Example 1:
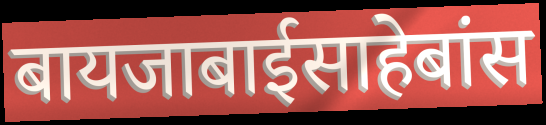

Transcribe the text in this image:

बायजाबाईसाहेबांस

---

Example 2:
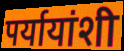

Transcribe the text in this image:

पर्यायांशी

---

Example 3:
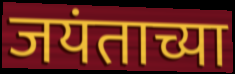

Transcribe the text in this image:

जयंताच्या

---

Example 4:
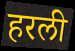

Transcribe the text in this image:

हरली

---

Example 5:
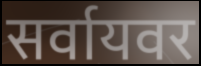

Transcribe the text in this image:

सर्वायवर